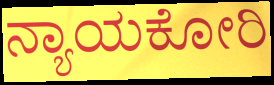
ನ್ಯಾಯಕೋರಿ